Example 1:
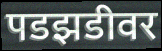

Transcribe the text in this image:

पडझडीवर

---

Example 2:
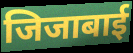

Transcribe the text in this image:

जिजाबाई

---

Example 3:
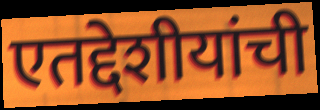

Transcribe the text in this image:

एतद्देशीयांची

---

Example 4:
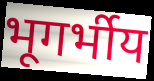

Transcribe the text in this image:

भूगर्भीय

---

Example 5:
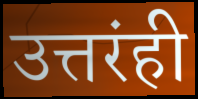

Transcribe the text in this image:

उत्तरंही